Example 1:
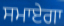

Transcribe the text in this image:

ਸਮਾਏਗਾ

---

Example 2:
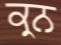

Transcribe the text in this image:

ਕ੍ਰਨ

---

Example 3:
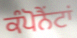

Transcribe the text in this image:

ਕੰਪੋਨੈਂਟਾਂ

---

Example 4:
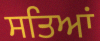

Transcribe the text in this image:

ਸਤਿਆਂ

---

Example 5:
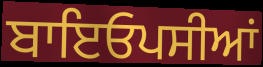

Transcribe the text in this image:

ਬਾਇਓਪਸੀਆਂ